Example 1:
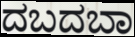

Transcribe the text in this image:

ದಬದಬಾ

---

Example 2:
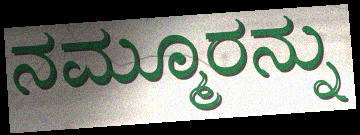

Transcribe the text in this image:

ನಮ್ಮೂರನ್ನು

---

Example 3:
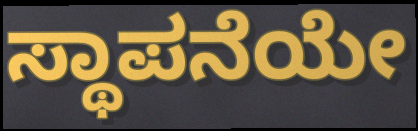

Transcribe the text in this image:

ಸ್ಥಾಪನೆಯೇ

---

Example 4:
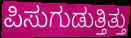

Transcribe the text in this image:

ಪಿಸುಗುಡುತ್ತಿತ್ತು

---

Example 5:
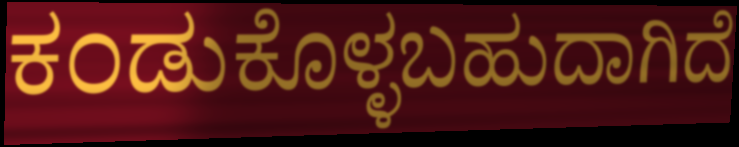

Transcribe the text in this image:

ಕಂಡುಕೊಳ್ಳಬಹುದಾಗಿದೆ